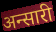
अन्सारी